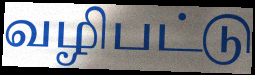
வழிபட்டு